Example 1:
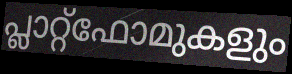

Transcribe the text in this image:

പ്ലാറ്റ്ഫോമുകളും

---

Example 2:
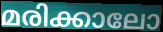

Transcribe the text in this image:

മരിക്കാലോ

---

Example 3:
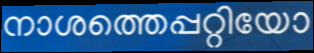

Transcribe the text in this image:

നാശത്തെപ്പറ്റിയോ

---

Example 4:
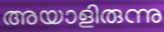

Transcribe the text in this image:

അയാളിരുന്നു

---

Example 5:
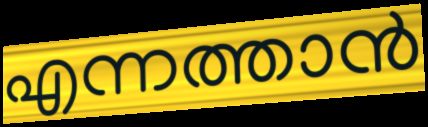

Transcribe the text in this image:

എന്നത്താൻ